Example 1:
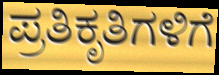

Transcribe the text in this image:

ಪ್ರತಿಕೃತಿಗಳಿಗೆ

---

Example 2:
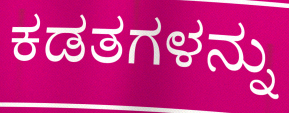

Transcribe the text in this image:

ಕಡತಗಳನ್ನು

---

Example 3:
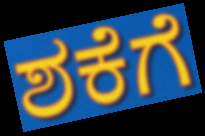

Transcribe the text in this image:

ಶಕೆಗೆ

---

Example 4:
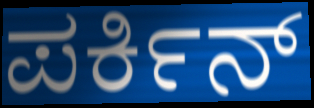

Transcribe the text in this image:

ಪರ್ಕಿನ್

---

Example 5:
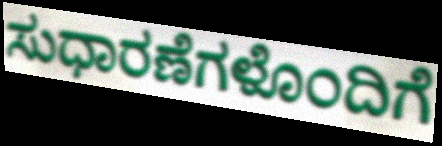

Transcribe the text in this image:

ಸುಧಾರಣೆಗಳೊಂದಿಗೆ